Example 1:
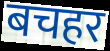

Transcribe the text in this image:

बचहर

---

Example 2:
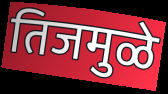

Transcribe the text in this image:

तिजमुळे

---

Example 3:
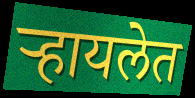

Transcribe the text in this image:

ऱ्हायलेत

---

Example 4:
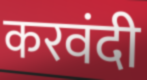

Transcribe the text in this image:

करवंदी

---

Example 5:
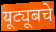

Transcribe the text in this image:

यूट्यूबचे